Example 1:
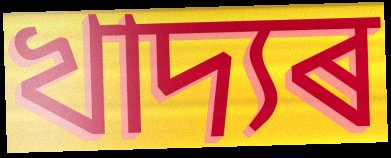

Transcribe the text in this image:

খাদ্যৰ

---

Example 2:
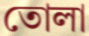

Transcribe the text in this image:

তোলা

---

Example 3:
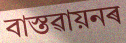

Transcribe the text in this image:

বাস্তৱায়নৰ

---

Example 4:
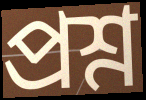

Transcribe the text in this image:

প্ৰশ্ন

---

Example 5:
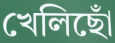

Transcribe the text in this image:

খেলিছোঁ